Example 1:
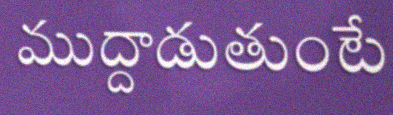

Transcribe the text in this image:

ముద్దాడుతుంటే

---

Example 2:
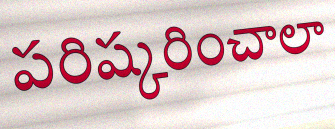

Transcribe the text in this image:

పరిష్కరించాలా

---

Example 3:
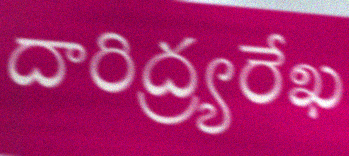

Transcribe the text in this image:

దారిద్ర్యరేఖ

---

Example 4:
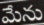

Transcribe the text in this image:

మేను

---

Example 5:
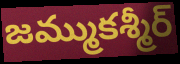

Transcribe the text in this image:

జమ్ముకశ్మీర్